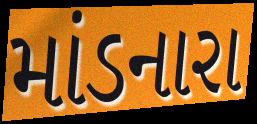
માંડનારા